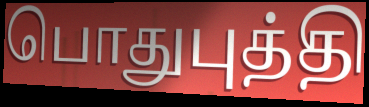
பொதுபுத்தி